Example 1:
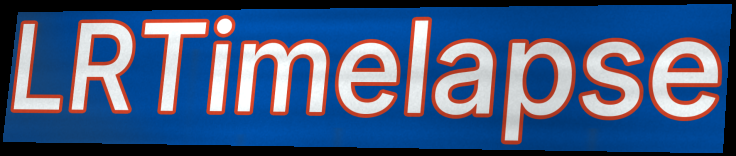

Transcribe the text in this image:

LRTimelapse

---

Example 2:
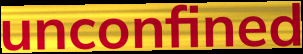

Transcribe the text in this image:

unconfined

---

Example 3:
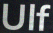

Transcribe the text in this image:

Ulf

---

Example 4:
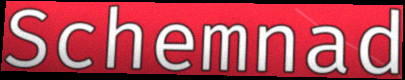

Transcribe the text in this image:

Schemnad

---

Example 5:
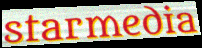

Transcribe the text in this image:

starmedia